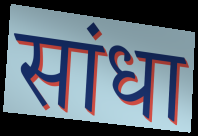
सांधा